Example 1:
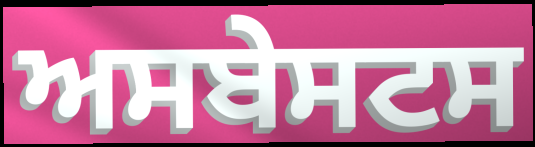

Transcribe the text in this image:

ਅਸਬੇਸਟਸ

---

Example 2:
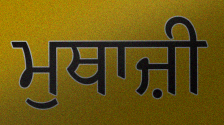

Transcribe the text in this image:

ਮੁਥਾਜ਼ੀ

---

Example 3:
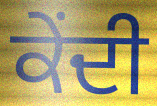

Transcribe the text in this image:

ਕੇਂਦੀ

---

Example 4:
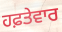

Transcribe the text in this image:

ਹਫ਼ਤੇਵਾਰ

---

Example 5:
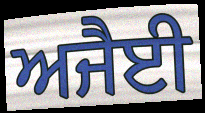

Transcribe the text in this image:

ਅਜੈਈ